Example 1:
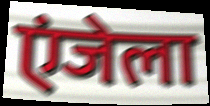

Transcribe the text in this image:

एंजेला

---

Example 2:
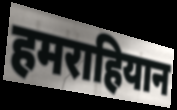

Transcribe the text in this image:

हमराहियान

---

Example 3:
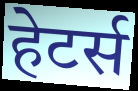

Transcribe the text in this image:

हेटर्स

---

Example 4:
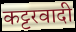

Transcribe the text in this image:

कट्टरवादी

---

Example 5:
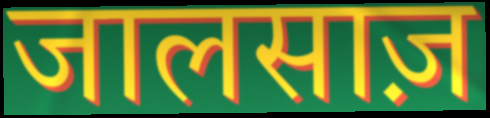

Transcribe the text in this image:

जालसाज़